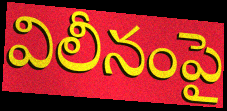
విలీనంపై